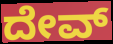
ದೇವ್